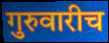
गुरुवारीच